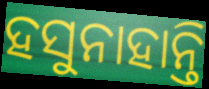
ହସୁନାହାନ୍ତି